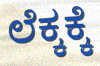
ಲೆಕ್ಕಕ್ಕೆ